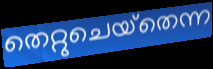
തെറ്റുചെയ്‌തെന്ന